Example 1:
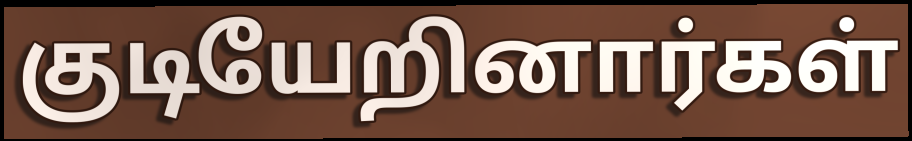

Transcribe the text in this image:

குடியேறினார்கள்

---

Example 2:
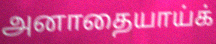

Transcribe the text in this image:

அனாதையாய்க்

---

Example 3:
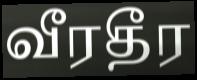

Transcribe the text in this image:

வீரதீர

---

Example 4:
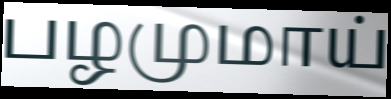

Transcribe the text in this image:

பழமுமாய்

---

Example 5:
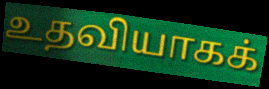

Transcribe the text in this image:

உதவியாகக்